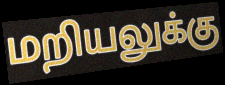
மறியலுக்கு